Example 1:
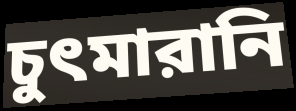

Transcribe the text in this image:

চুৎমারানি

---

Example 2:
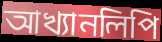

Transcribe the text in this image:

আখ্যানলিপি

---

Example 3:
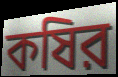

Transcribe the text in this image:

কষির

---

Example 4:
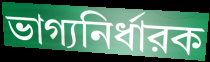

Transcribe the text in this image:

ভাগ্যনির্ধারক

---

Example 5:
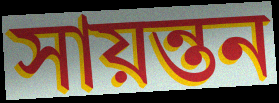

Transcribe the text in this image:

সায়ন্তন